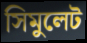
সিমুলেট